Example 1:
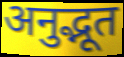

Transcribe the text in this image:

अनुद्भूत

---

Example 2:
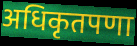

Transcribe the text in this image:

अधिकृतपणा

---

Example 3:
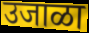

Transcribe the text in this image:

उजाळा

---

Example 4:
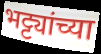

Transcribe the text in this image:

भट्ट्यांच्या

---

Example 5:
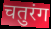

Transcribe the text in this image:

चतुरंग